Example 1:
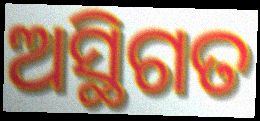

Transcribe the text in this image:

ଅସ୍ଥିଗତ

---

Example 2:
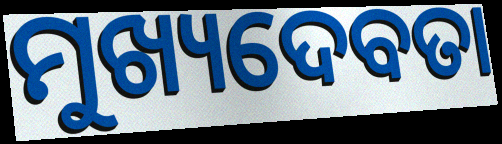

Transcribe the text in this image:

ମୁଖ୍ୟଦେବତା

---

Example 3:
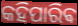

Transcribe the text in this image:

କହିପାରିଵ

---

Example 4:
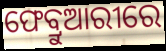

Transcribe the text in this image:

ଫେବ୍ରୁଆରୀରେ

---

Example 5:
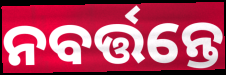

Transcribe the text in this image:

ନବର୍ତ୍ତନ୍ତେ